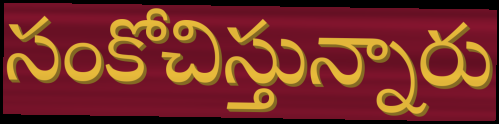
సంకోచిస్తున్నారు